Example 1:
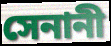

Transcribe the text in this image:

সেনানী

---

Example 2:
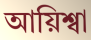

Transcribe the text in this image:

আয়িশ্বা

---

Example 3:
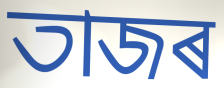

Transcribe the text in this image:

তাজৰ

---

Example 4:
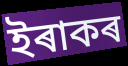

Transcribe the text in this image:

ইৰাকৰ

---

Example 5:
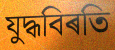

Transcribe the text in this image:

যুদ্ধবিৰতি